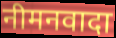
नीमनवादा